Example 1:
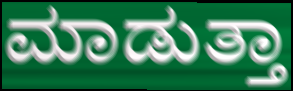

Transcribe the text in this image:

ಮಾಡುತ್ತಾ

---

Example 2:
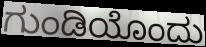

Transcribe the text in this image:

ಗುಂಡಿಯೊಂದು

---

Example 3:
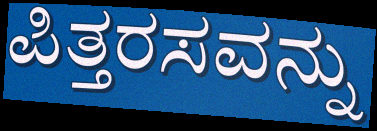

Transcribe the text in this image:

ಪಿತ್ತರಸವನ್ನು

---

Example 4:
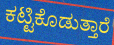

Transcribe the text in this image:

ಕಟ್ಟಿಕೊಡುತ್ತಾರೆ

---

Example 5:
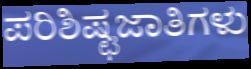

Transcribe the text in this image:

ಪರಿಶಿಷ್ಟಜಾತಿಗಳು